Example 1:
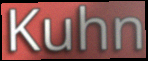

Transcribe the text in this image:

Kuhn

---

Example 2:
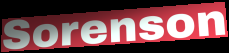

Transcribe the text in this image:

Sorenson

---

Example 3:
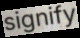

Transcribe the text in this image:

signify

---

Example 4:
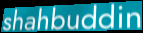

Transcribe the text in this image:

shahbuddin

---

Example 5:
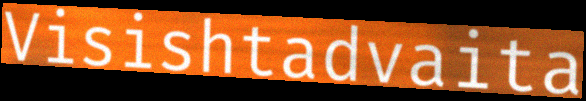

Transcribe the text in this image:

Visishtadvaita